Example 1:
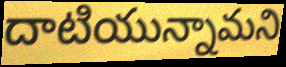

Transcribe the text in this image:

దాటియున్నామని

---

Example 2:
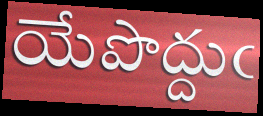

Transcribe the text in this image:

యేపొద్దుఁ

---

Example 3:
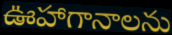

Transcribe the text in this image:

ఊహాగానాలను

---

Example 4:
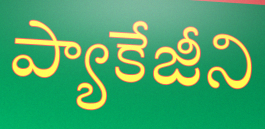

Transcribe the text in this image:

ప్యాకేజీని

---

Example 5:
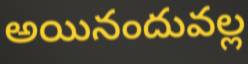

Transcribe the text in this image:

అయినందువల్ల